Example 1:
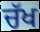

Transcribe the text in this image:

ਚੱਖ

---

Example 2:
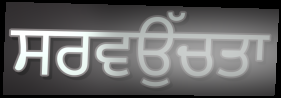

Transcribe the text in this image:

ਸਰਵਉੱਚਤਾ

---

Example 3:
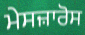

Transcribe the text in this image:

ਮੇਸਜ਼ਾਰੋਸ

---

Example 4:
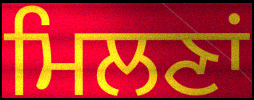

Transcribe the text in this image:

ਮਿਲਣਾਂ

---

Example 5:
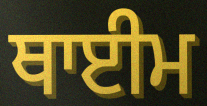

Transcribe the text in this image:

ਥਾਈਮ